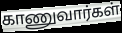
காணுவார்கள்